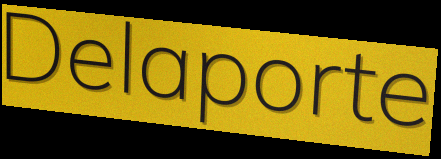
Delaporte